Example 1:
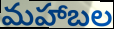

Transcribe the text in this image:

మహాబల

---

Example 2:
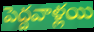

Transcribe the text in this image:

పెద్దవాళ్లయి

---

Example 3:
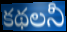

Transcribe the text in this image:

కథలనీ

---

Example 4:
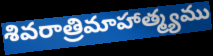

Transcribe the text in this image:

శివరాత్రిమాహాత్మ్యము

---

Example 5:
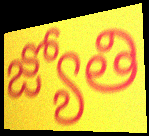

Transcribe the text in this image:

జ్యోతి